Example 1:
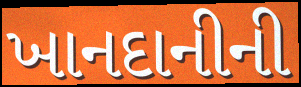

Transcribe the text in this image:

ખાનદાનીની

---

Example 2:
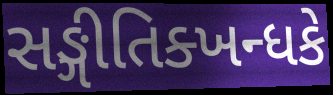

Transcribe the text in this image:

સઙ્ગીતિક્ખન્ધકે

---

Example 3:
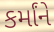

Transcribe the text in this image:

કર્માંને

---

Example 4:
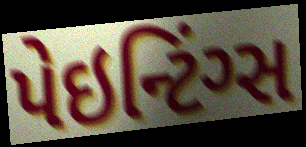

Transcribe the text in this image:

પેઇન્ટિંગ્સ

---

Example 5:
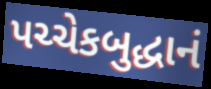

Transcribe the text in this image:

પચ્ચેકબુદ્ધાનં